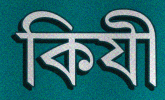
কিযী